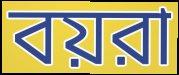
বয়রা